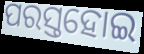
ପରସ୍ତହୋଇ